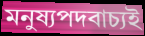
মনুষ্যপদবাচ্যই